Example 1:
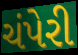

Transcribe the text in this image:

ચંપેરી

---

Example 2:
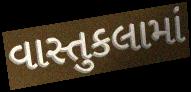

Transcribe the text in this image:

વાસ્તુકલામાં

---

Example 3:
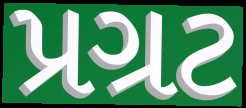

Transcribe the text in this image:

પ્રગ્રટ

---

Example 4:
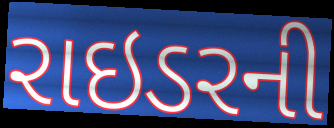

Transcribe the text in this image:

રાઇડરની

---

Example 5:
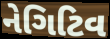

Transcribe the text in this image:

નેગિટિવ